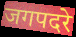
जगपदरे